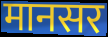
मानसर